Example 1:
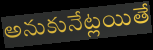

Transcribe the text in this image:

అనుకునేట్లయితే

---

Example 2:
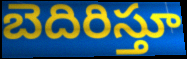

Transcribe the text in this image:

బెదిరిస్తూ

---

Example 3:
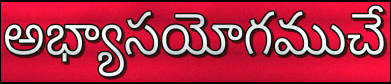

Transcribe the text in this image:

అభ్యాసయోగముచే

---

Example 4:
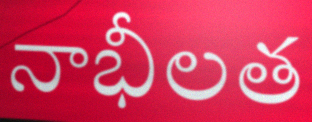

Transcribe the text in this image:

నాభీలత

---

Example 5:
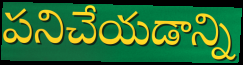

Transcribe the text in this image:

పనిచేయడాన్ని